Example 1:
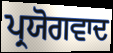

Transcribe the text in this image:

ਪ੍ਰਯੋਗਵਾਦ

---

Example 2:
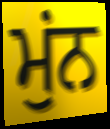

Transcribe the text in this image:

ਮੁਂਨ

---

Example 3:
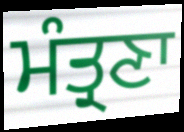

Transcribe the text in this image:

ਮੰਤ੍ਰਣਾ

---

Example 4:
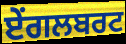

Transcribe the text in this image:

ਏਂਗਲਬਰਟ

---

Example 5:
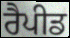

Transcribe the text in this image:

ਰੈਪੀਡ